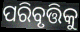
ପରିବୃତ୍ତିକୁ